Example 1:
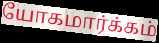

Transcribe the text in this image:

யோகமார்க்கம்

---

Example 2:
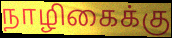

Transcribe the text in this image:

நாழிகைக்கு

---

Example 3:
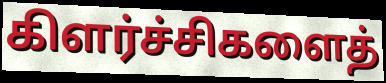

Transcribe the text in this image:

கிளர்ச்சிகளைத்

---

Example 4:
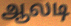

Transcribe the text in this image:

ஆலடி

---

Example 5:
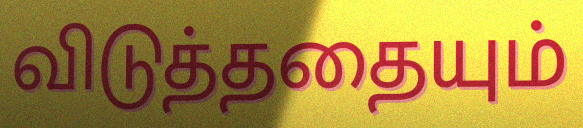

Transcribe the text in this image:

விடுத்ததையும்